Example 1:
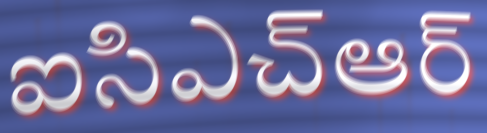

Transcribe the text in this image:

ఐసిఎచ్ఆర్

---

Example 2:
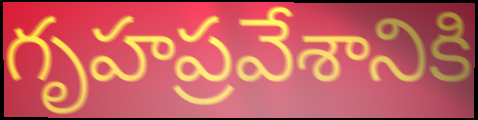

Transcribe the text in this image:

గృహప్రవేశానికి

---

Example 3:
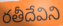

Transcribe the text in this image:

రతీదేవిని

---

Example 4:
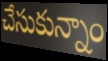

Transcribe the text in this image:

చేసుకున్నాం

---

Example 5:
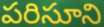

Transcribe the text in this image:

పరిసూని